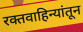
रक्तवाहिन्यांतून